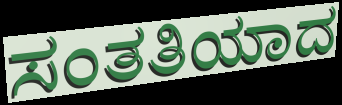
ಸಂತತಿಯಾದ